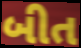
બીત